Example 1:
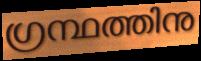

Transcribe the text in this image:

ഗ്രന്ഥത്തിനു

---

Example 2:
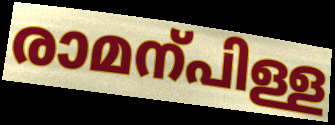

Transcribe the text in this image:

രാമന്പിള്ള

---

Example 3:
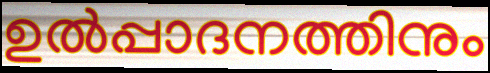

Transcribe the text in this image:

ഉൽപ്പാദനത്തിനും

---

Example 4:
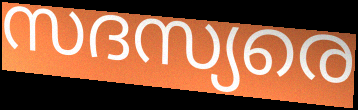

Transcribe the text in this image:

സദസ്യരെ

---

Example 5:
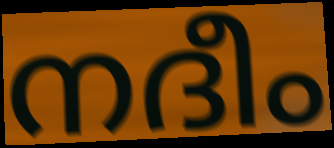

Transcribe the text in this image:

നദീം